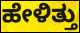
ಹೇಳಿತ್ತು